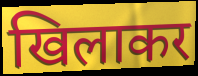
खिलाकर